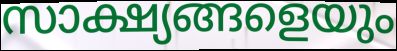
സാക്ഷ്യങ്ങളെയും